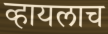
व्हायलाच